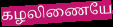
கழலிணையே